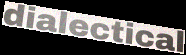
dialectical